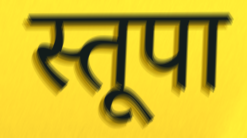
स्तूपा